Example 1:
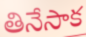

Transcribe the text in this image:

తినేసాక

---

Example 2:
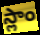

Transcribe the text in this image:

స్లాం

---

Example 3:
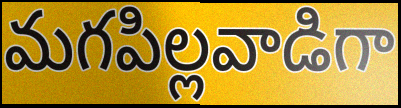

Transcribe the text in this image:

మగపిల్లవాడిగా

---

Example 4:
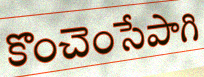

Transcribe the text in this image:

కొంచెంసేపాగి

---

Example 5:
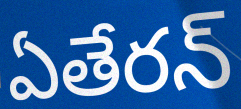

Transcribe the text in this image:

ఏతేరన్